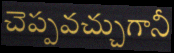
చెప్పవచ్చుగానీ